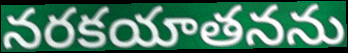
నరకయాతనను